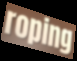
roping